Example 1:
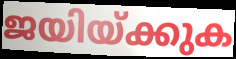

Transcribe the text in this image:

ജയിയ്ക്കുക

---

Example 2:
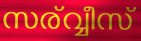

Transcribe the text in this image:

സര്വ്വീസ്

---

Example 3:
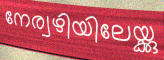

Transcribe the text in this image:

നേര്വഴിയിലേയ്ക്കു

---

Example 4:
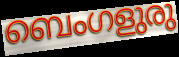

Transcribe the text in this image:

ബെംഗളുരു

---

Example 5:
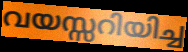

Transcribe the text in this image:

വയസ്സറിയിച്ച